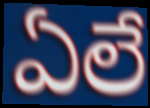
ఏలే